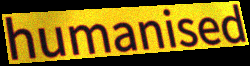
humanised